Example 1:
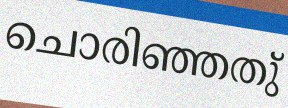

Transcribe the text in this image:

ചൊരിഞ്ഞതു്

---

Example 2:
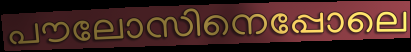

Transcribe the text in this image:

പൗലോസിനെപ്പോലെ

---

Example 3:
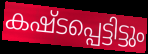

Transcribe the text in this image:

കഷ്ടപ്പെട്ടിട്ടും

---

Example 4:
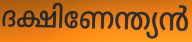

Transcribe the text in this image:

ദക്ഷിണേന്ത്യൻ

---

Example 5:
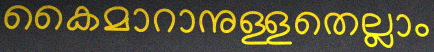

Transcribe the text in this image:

കൈമാറാനുള്ളതെല്ലാം